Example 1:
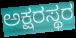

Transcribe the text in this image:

ಅಕ್ಷರಸ್ಥರ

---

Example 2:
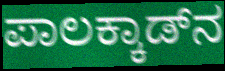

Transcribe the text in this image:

ಪಾಲಕ್ಕಾಡ್‌ನ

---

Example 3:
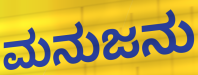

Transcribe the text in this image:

ಮನುಜನು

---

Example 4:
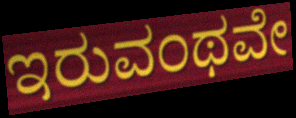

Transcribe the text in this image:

ಇರುವಂಥವೇ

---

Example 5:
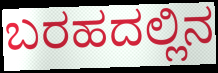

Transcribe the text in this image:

ಬರಹದಲ್ಲಿನ